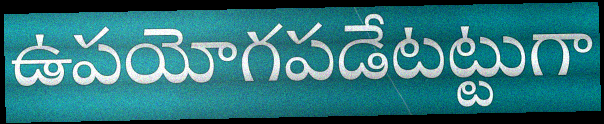
ఉపయోగపడేటట్టుగా